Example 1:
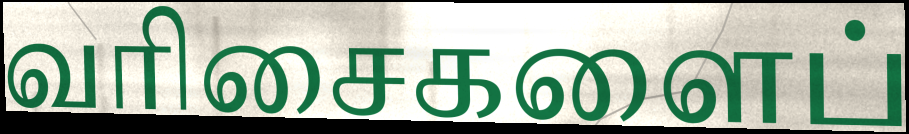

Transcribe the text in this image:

வரிசைகளைப்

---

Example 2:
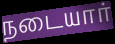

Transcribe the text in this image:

நடையார்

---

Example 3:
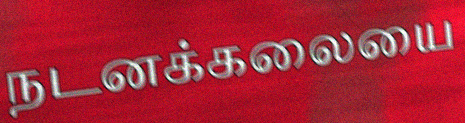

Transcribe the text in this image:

நடனக்கலையை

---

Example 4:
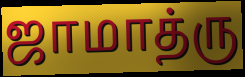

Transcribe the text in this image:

ஜாமாத்ரு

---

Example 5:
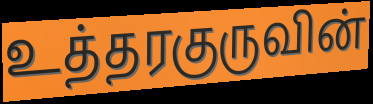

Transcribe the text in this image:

உத்தரகுருவின்